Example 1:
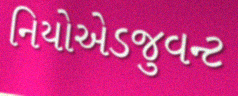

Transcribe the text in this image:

નિયોએડજુવન્ટ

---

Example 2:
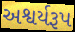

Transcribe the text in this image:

અશ્વર્યરૂપ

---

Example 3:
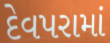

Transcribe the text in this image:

દેવપરામાં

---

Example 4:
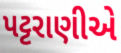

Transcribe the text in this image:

પટ્ટરાણીએ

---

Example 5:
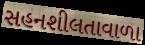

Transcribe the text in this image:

સહનશીલતાવાળા